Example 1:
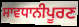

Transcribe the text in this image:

ਸਾਵਧਾਨੀਪੂਰਣ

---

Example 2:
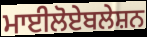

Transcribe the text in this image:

ਮਾਈਲੋਏਬਲੇਸ਼ਨ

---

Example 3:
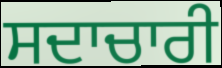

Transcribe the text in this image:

ਸਦਾਚਾਰੀ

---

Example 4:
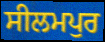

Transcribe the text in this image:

ਸੀਲਮਪੁਰ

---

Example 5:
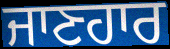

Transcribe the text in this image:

ਜਾਣਹਾਰ